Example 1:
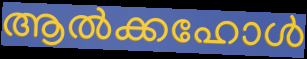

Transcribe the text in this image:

ആൽക്കഹോൾ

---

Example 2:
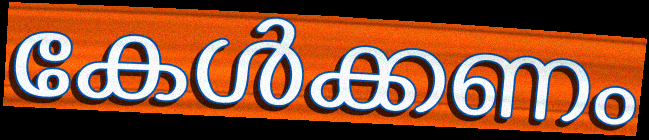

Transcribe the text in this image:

കേൾക്കണം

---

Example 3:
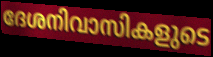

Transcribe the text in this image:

ദേശനിവാസികളുടെ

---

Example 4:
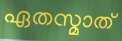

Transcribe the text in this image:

ഏതസ്മാത്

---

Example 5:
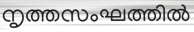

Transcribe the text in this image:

നൃത്തസംഘത്തിൽ